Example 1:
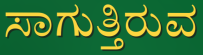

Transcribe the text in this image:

ಸಾಗುತ್ತಿರುವ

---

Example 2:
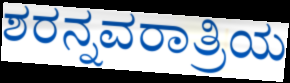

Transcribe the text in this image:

ಶರನ್ನವರಾತ್ರಿಯ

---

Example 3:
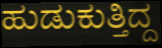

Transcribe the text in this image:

ಹುಡುಕುತ್ತಿದ್ದ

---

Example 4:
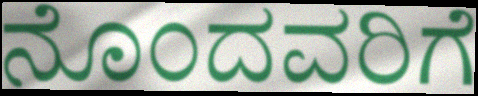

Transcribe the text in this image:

ನೊಂದವರಿಗೆ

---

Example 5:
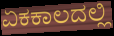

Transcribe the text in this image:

ಏಕಕಾಲದಲ್ಲಿ